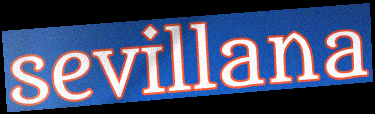
sevillana